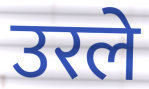
उरले